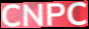
CNPC